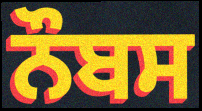
ਨੌਬਸ